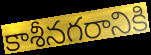
కాశీనగరానికి